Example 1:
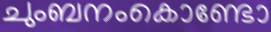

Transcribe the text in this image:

ചുംബനംകൊണ്ടോ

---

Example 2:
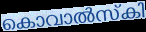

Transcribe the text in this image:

കൊവാൽസ്‌കി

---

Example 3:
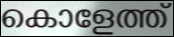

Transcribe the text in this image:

കൊളേത്ത്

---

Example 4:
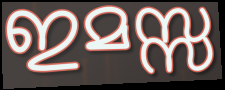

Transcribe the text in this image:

ഇമസ്സ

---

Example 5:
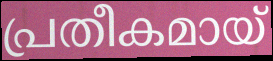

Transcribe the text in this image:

പ്രതീകമായ്